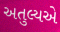
અતુલ્યએ